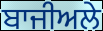
ਬਾਜੀਅਲੇ